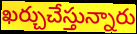
ఖర్చుచేస్తున్నారు